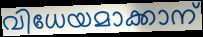
വിധേയമാക്കാന്